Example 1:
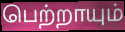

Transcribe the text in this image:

பெற்றாயும்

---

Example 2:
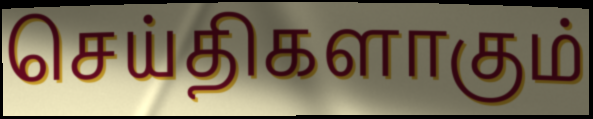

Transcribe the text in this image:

செய்திகளாகும்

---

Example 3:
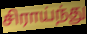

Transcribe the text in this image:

சிராய்ந்து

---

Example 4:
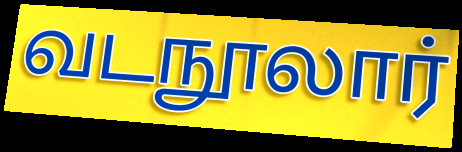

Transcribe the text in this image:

வடநூலார்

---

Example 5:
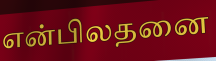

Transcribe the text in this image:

என்பிலதனை